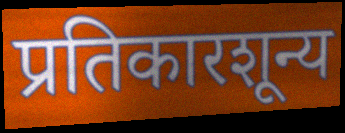
प्रतिकारशून्य